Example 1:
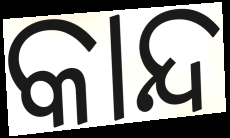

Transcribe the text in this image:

କାନ୍ଦ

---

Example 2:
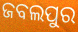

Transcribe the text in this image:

ଜବଲପୁର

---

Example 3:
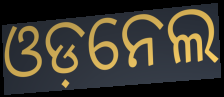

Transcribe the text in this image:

ଓଡ଼ନେଲ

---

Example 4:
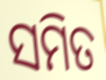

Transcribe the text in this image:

ସମିତ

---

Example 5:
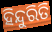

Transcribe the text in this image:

ହିନ୍ଦୁରିତି